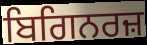
ਬਿਗਿਨਰਜ਼